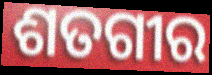
ଶତଗୀର